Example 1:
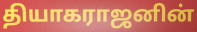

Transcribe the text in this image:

தியாகராஜனின்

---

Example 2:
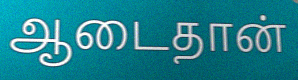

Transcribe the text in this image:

ஆடைதான்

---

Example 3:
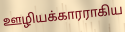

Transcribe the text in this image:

ஊழியக்காரராகிய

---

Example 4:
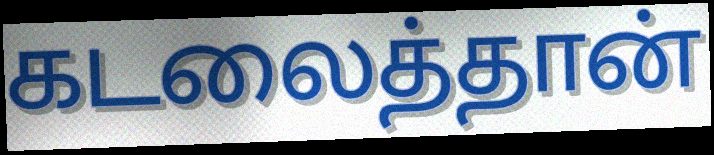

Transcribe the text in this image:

கடலைத்தான்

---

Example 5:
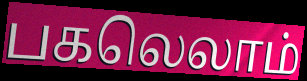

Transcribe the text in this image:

பகலெலாம்